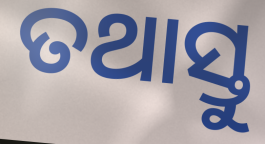
ତଥାସ୍ତୁ